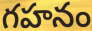
గహనం